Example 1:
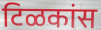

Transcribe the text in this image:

टिळकांस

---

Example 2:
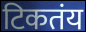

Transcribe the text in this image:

टिकतंय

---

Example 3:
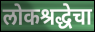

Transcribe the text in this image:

लोकश्रद्धेचा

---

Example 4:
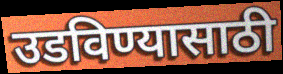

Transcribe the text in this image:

उडविण्यासाठी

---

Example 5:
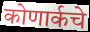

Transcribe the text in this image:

कोणार्कचे